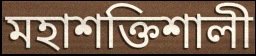
মহাশক্তিশালী